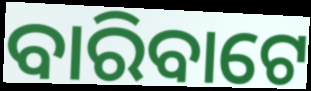
ବାରିବାଟେ